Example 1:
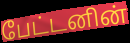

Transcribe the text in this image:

பேட்டனின்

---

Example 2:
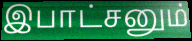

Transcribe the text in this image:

இபாட்சனும்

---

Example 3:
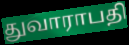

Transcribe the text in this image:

துவாராபதி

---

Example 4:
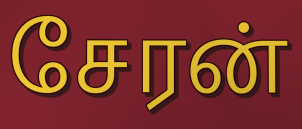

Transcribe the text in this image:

சேரன்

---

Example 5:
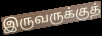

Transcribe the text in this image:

இருவருக்குத்